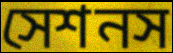
সেশনস